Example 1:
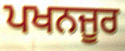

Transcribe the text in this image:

ਪਖਨਜੂਰ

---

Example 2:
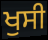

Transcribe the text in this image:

ਖੁਸੀ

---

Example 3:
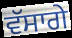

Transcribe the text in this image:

ਵੱਸਾਗੇ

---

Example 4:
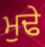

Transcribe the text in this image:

ਮੁਢੇ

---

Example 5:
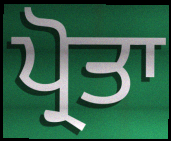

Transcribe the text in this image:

ਪ੍ਰੋਤਾ